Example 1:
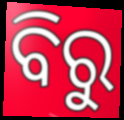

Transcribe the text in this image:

ବିରୁ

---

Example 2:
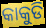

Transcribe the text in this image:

କାକୁଡି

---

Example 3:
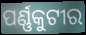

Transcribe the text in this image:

ପର୍ଣ୍ଣକୁଟୀର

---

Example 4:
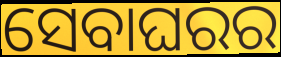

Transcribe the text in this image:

ସେବାଘରର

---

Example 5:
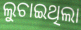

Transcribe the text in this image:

ଲୁଚାଇଥିଲା